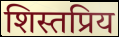
शिस्तप्रिय